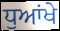
ਧੁਆਂਖੇ